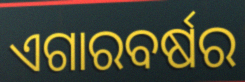
ଏଗାରବର୍ଷର